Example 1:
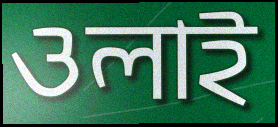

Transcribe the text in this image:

ওলাই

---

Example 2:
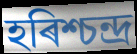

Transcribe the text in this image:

হৰিশ্চন্দ্ৰ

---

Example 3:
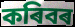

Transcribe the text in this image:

কৰিবৰ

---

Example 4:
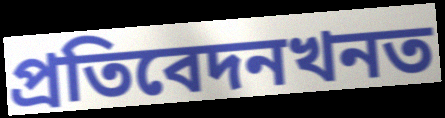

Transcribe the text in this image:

প্ৰতিবেদনখনত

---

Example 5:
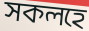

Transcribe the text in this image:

সকলহে